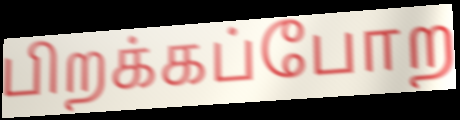
பிறக்கப்போற